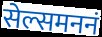
सेल्समननं